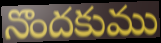
నొందకుము